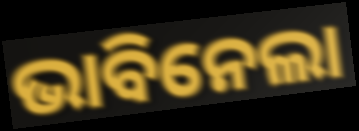
ଭାବିନେଲା